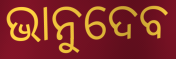
ଭାନୁଦେବ